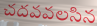
చదవవలసిన